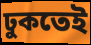
ঢুকতেই